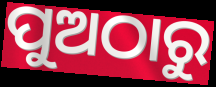
ପୁଅଠାରୁ